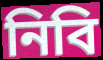
নিবি